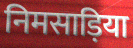
निमसाड़िया